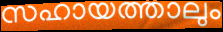
സഹായത്താലും